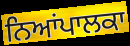
ਨਿਆਂਪਾਲਕਾ